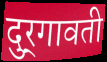
दुर्गावती